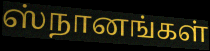
ஸ்நானங்கள்